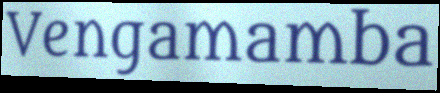
Vengamamba